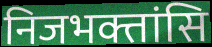
निजभक्तांसि